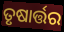
ତୃଷାର୍ତ୍ତର